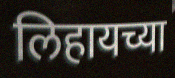
लिहायच्या